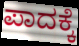
ಪಾದಕ್ಕೆ